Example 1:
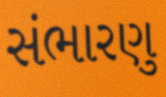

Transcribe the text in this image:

સંભારણુ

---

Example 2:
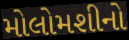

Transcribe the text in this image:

મોલોમશીનો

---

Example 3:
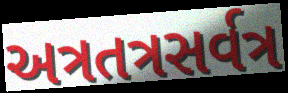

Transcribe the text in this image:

અત્રતત્રસર્વત્ર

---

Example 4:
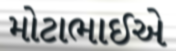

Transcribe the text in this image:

મોટાભાઈએ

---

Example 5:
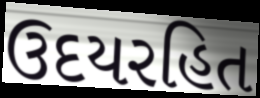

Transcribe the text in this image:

ઉદયરહિત